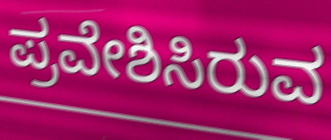
ಪ್ರವೇಶಿಸಿರುವ